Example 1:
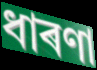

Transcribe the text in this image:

ধাৰণা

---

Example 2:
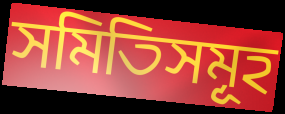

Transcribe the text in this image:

সমিতিসমূহ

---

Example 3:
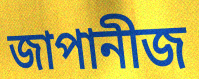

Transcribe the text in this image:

জাপানীজ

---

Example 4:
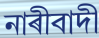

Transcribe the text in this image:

নাৰীবাদী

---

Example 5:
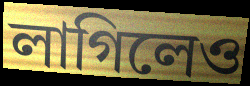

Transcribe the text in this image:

লাগিলেও